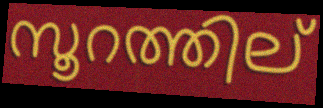
സൂറത്തില്